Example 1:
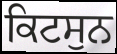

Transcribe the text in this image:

ਕਿਟਸੁਨ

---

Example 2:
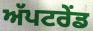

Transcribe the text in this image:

ਅੱਪਟਰੇਂਡ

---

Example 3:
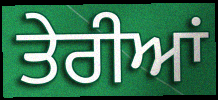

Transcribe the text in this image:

ਤੇਰੀਆਂ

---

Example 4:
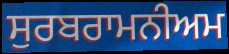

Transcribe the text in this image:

ਸੁਰਬਰਾਮਨੀਅਮ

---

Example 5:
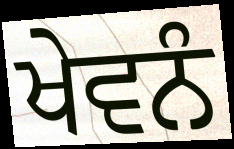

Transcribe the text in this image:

ਖੇਵਨੰ